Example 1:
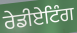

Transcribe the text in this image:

ਰੇਡੀਏਟਿੰਗ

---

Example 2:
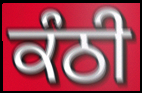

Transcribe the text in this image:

ਕੰਠੀ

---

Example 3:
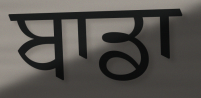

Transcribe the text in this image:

ਬਾਡਾ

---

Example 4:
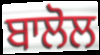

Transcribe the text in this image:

ਬਾਲੋਲ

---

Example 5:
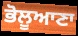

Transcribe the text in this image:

ਭੋਲੂਆਣਾ